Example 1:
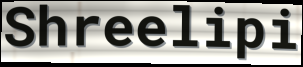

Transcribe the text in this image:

Shreelipi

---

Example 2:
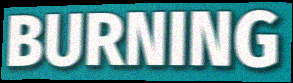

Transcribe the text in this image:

BURNING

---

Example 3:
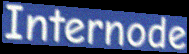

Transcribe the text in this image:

Internode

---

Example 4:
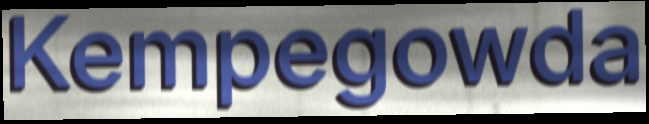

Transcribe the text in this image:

Kempegowda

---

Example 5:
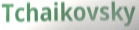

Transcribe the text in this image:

Tchaikovsky